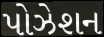
પોઝેશન